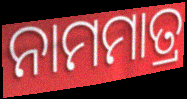
ନାମମାତ୍ର